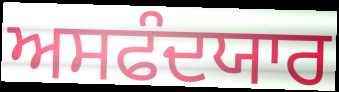
ਅਸਫੰਦਯਾਰ